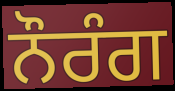
ਨੌਰੰਗ